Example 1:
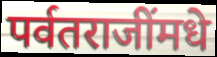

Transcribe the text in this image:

पर्वतराजींमधे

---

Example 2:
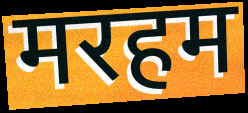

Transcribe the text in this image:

मरहम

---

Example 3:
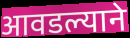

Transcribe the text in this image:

आवडल्याने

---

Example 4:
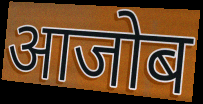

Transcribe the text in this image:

आजोब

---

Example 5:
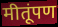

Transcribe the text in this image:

मीतूंपण